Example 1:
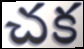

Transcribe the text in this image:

చక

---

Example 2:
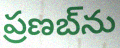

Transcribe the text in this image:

ప్రణబ్‌ను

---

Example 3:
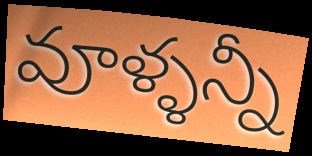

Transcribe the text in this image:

వూళ్ళన్నీ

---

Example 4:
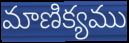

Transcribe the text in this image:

మాణిక్యము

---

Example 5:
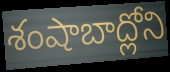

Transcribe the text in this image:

శంషాబాద్లోని